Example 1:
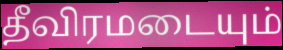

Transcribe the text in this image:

தீவிரமடையும்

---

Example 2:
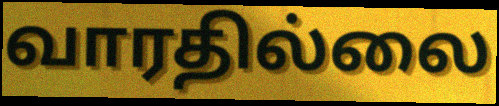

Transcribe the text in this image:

வாரதில்லை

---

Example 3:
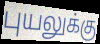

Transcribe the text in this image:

புயலுக்கு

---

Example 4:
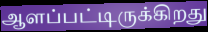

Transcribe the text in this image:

ஆளப்பட்டிருக்கிறது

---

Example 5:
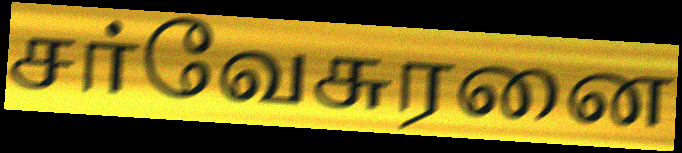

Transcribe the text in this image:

சர்வேசுரனை